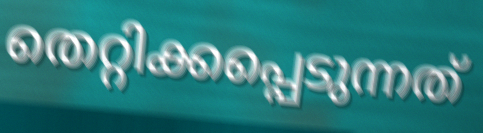
തെറ്റിക്കപ്പെടുന്നത്